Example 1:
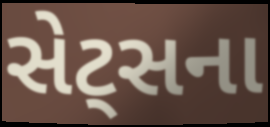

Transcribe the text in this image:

સેટ્સના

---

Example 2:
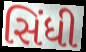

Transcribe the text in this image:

સિંધી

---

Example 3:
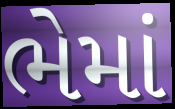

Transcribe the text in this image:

ભેમાં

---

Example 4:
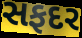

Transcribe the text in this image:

સફદર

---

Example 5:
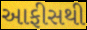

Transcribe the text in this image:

આફીસથી